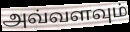
அவ்வளவும்